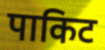
पाकिट